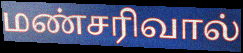
மண்சரிவால்